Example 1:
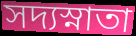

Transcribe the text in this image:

সদ্যস্নাতা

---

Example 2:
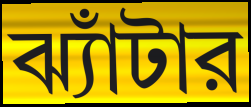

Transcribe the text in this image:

ঝ্যাঁটার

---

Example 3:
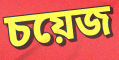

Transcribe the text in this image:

চয়েজ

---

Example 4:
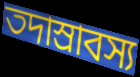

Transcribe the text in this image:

তদাস্রাবস্য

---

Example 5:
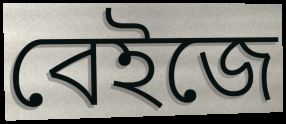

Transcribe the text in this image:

বেইজে